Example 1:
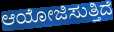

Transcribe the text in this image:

ಆಯೋಜಿಸುತ್ತಿದೆ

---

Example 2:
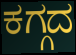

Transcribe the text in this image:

ಕಗ್ಗದ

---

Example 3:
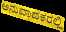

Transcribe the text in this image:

ಅನುವಾದಕರಲ್ಲಿ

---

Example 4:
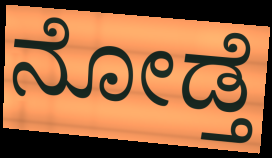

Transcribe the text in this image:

ನೋಡ್ತೆ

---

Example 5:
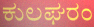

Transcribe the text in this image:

ಕುಲಘರಂ